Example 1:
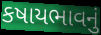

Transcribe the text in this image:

કષાયભાવનું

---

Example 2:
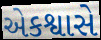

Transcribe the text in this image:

એકશ્વાસે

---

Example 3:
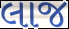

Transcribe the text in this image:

લાજ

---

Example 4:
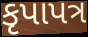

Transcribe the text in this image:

કૃપાપત્ર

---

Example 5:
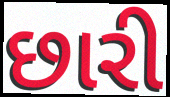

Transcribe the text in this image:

છારી